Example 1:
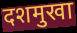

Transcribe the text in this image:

दशमुखा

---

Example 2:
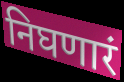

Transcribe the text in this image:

निघणारं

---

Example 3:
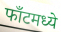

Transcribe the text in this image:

फाँटमध्ये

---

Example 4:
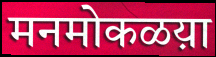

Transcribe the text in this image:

मनमोकळय़ा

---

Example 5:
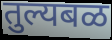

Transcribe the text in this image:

तुल्यबळ